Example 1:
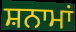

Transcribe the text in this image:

ਸ਼ਨਾਮਾਂ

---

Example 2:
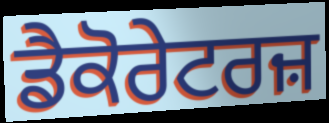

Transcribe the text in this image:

ਡੈਕੋਰੇਟਰਜ਼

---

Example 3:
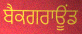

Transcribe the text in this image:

ਬੈਕਗਰਾਊਂਡ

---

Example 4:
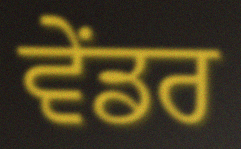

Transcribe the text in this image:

ਵੇਂਡਰ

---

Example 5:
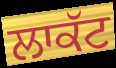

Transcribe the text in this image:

ਲਾਕੱਟ